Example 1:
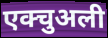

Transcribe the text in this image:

एक्चुअली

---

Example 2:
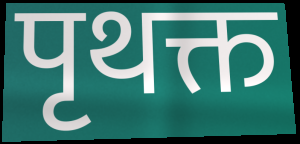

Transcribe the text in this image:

पृथक्त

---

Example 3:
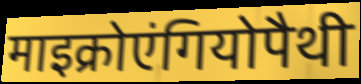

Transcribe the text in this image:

माइक्रोएंगियोपैथी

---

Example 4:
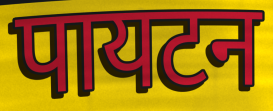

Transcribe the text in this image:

पायटन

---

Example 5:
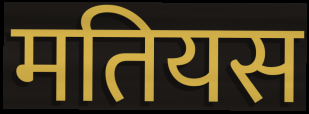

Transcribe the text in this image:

मतियस